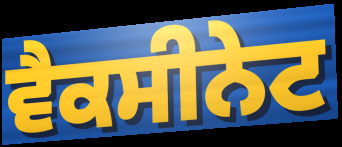
ਵੈਕਸੀਨੇਟ